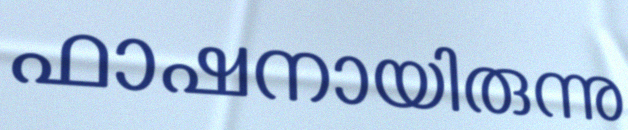
ഫാഷനായിരുന്നു